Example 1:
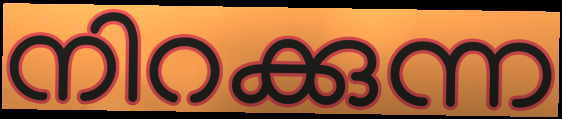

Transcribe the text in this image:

നിറക്കുന്ന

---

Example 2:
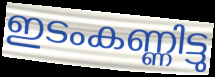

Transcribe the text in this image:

ഇടംകണ്ണിട്ടു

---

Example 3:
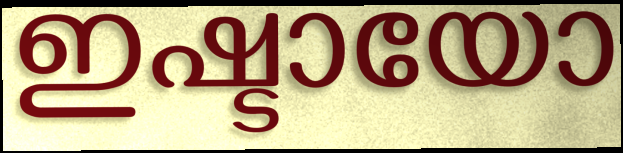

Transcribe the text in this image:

ഇഷ്ടായോ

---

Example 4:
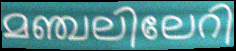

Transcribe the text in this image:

മഞ്ചലിലേറി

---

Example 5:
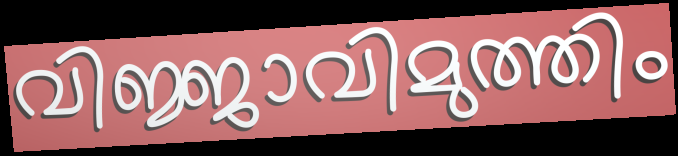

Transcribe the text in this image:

വിജ്ജാവിമുത്തിം